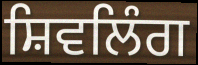
ਸ਼ਿਵਲਿੰਗ